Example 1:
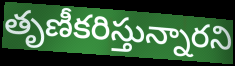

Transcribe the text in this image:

తృణీకరిస్తున్నారని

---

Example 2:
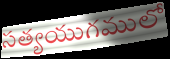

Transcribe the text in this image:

సత్యయుగములో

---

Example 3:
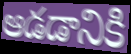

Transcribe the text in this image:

ఆడడానికి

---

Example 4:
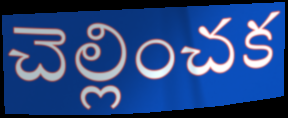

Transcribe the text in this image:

చెల్లించక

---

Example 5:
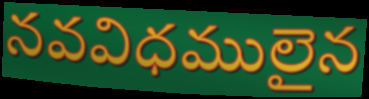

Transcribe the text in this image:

నవవిధములైన